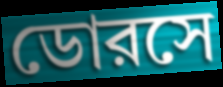
ডোরসে